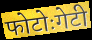
फोटोःगेटी